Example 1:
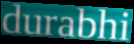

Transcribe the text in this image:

durabhi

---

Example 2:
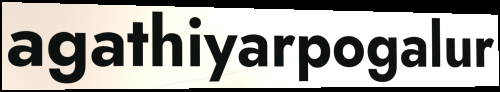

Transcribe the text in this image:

agathiyarpogalur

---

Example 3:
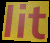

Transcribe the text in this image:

Iit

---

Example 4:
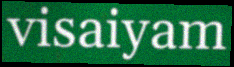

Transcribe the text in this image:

visaiyam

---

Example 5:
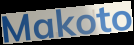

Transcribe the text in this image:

Makoto